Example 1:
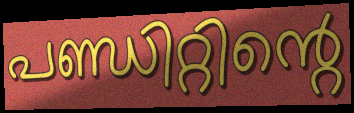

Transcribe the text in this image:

പണ്ഡിറ്റിന്റെ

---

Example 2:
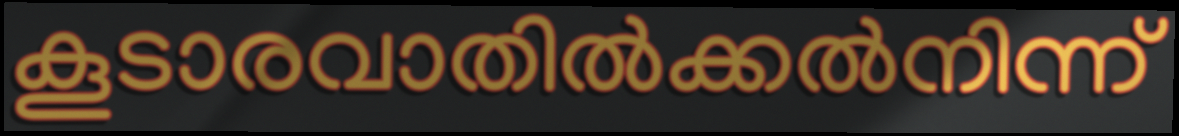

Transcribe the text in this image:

കൂടാരവാതിൽക്കൽനിന്ന്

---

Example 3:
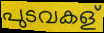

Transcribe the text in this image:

പുടവകള്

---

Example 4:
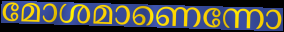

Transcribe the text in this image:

മോശമാണെന്നോ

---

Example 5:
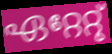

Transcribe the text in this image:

ഏറ്റേറ്റു്